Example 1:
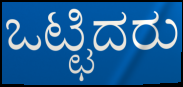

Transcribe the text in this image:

ಒಟ್ಟಿದರು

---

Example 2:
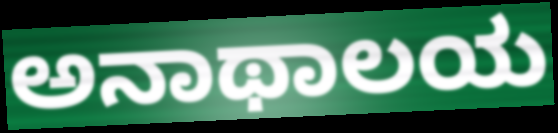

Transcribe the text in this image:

ಅನಾಥಾಲಯ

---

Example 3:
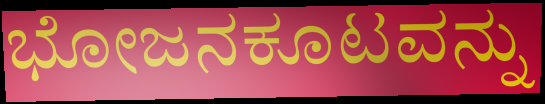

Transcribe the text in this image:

ಭೋಜನಕೂಟವನ್ನು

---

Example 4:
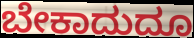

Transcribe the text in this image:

ಬೇಕಾದುದೂ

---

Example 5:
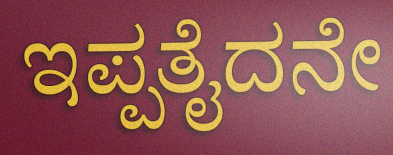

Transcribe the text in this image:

ಇಪ್ಪತೈದನೇ